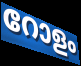
റോളം